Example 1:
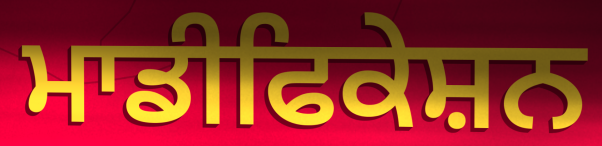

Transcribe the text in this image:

ਮਾਡੀਫਿਕੇਸ਼ਨ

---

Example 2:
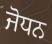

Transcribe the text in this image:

ਜੋਧਨ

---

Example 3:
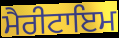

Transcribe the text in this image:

ਮੈਰੀਟਾਇਮ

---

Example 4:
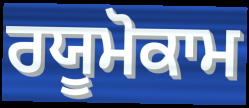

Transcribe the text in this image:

ਰਯੂਮੋਕਾਮ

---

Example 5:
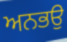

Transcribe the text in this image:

ਅਨਭਉ